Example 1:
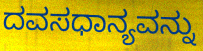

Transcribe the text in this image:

ದವಸಧಾನ್ಯವನ್ನು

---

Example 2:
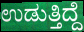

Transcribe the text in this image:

ಉಡುತ್ತಿದ್ದೆ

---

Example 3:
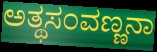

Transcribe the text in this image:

ಅತ್ಥಸಂವಣ್ಣನಾ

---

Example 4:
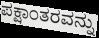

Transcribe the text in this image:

ಪಕ್ಷಾಂತರವನ್ನು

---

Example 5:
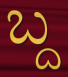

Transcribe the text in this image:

ಬ್ದ